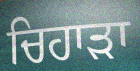
ਚਿਹਾੜਾ